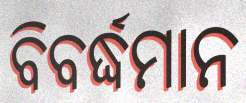
ବିବର୍ଦ୍ଧମାନ